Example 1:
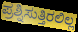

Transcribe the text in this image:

ಪ್ರಶ್ನಿಸುತ್ತಿರಲಿಲ್ಲ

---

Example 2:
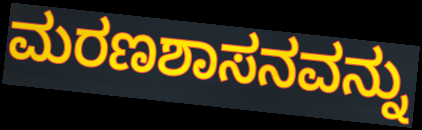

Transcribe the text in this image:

ಮರಣಶಾಸನವನ್ನು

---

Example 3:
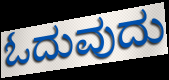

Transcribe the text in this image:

ಓದುವುದು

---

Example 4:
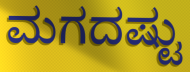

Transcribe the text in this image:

ಮಗದಷ್ಟು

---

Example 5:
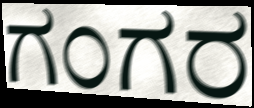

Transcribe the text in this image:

ಗಂಗರ